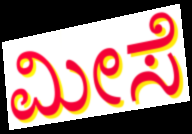
ಮೀಸೆ